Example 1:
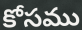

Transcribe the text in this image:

కోసము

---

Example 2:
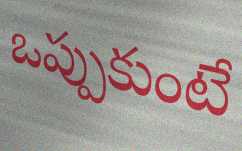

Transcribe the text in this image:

ఒప్పుకుంటే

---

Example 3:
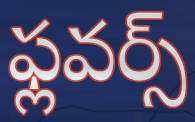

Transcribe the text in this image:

ఫ్లవర్స్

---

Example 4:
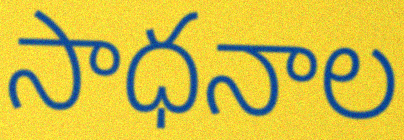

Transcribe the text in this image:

సాధనాల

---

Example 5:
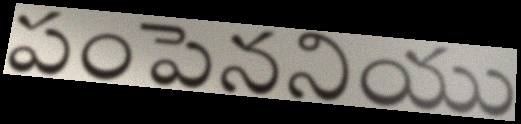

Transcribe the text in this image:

పంపెననియు